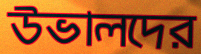
উভালদের